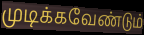
முடிக்கவேண்டும்